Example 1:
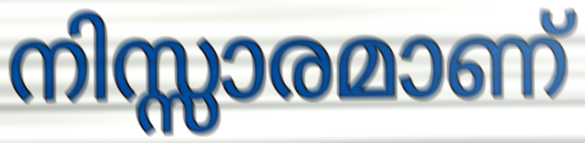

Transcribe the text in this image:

നിസ്സാരമാണ്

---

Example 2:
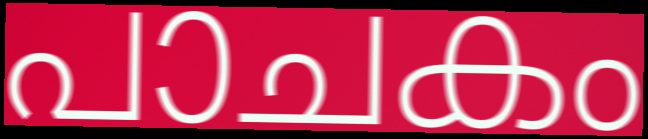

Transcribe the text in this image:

പാചകം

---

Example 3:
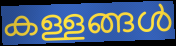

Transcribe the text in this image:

കള്ളങ്ങൾ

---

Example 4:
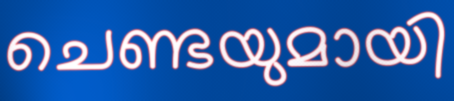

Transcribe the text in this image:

ചെണ്ടയുമായി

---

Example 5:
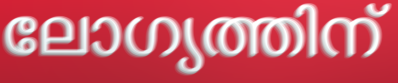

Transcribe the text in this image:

ലോഗ്യത്തിന്